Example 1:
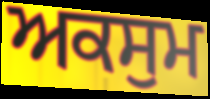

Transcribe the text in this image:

ਅਕਸੁਮ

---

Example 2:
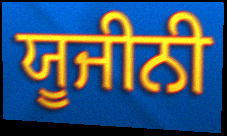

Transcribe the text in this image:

ਯੂਜੀਨੀ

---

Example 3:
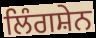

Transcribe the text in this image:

ਲਿੰਗਸ਼ੇਨ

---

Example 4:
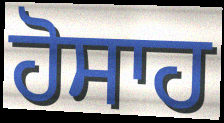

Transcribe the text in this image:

ਹੋਸਾਹ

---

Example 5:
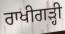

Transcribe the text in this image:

ਰਾਖੀਗੜ੍ਹੀ